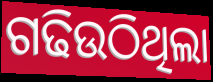
ଗଢିଉଠିଥିଲା